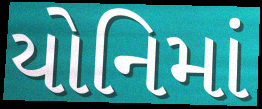
યોનિમાં